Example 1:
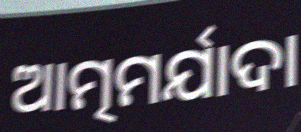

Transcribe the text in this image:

ଆତ୍ମମର୍ଯାଦା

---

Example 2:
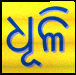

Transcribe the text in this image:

ଧୂଳି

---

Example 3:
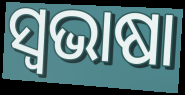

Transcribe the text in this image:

ସ୍ୱଭାଷା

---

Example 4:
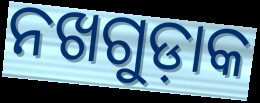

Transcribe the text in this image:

ନଖଗୁଡ଼ାକ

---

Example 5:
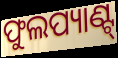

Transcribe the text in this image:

ଫୁଲପ୍ୟାଣ୍ଟ୍